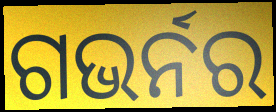
ଗଭର୍ନର